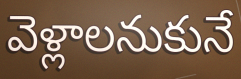
వెళ్లాలనుకునే